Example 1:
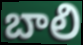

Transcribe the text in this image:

బాలి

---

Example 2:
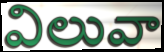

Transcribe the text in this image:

విలువా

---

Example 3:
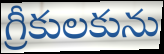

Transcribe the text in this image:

గ్రీకులకును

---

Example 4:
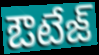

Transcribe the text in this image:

ఔటేజ్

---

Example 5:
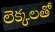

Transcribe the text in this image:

లెక్కలతో